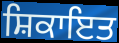
ਸ਼ਿਕਾਇਤ